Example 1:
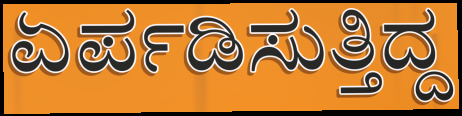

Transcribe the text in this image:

ಏರ್ಪಡಿಸುತ್ತಿದ್ದ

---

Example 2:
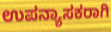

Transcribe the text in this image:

ಉಪನ್ಯಾಸಕರಾಗಿ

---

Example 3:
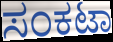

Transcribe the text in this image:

ಸಂಕಟಾ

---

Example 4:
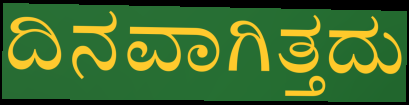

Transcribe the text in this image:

ದಿನವಾಗಿತ್ತದು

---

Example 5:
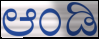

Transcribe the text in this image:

ಆಂಡಿ